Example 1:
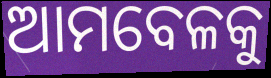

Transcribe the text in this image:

ଆମବେଳକୁ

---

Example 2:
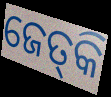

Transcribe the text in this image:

ଜେତ୍‌କି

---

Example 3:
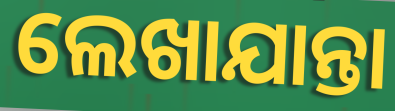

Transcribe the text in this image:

ଲେଖାଯାନ୍ତା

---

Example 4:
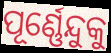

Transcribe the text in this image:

ପୂର୍ଣ୍ଣେନ୍ଦୁକୁ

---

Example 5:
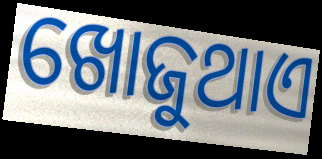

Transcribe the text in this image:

ଖୋଜୁଥାଏ